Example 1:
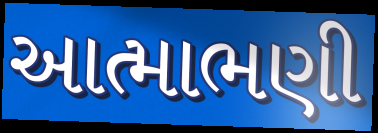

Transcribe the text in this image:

આત્માભણી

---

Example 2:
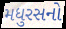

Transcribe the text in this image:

મધુરસનો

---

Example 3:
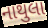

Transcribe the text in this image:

નાથુલા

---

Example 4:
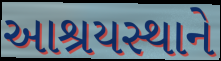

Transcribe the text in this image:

આશ્રયસ્થાને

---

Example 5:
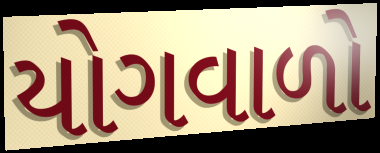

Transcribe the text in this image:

યોગવાળો